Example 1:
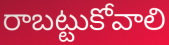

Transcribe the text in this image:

రాబట్టుకోవాలి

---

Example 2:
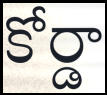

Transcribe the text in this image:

కోర్డా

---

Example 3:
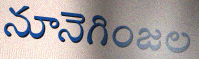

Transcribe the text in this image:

నూనెగింజల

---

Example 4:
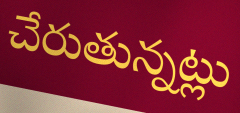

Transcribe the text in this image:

చేరుతున్నట్లు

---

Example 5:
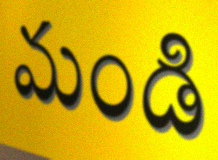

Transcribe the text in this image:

మండి